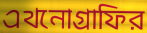
এথনোগ্রাফির